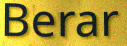
Berar